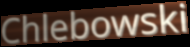
Chlebowski